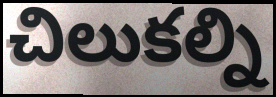
చిలుకల్ని